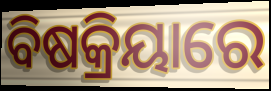
ବିଷକ୍ରିୟାରେ